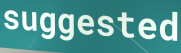
suggested